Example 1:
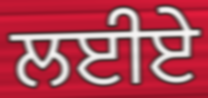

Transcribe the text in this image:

ਲਈਏ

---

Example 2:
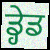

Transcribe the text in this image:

ਡ੍ਹੇਡ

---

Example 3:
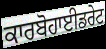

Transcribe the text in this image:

ਕਾਰਬੋਹਾਈਡਰੇਟ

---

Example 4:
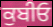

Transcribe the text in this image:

ਕੁਬੀਓ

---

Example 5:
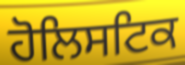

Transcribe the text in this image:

ਹੋਲਿਸਟਿਕ